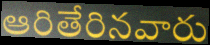
ఆరితేరినవారు